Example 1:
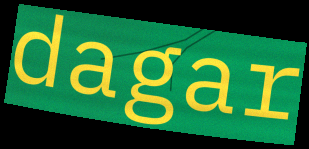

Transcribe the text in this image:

dagar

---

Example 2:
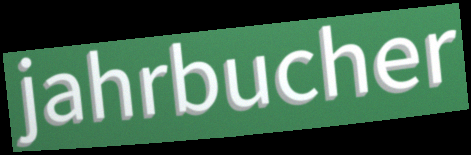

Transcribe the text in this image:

jahrbucher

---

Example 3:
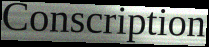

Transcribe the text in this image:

Conscription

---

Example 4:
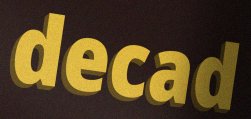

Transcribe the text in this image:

decad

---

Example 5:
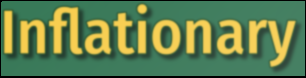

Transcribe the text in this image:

Inflationary